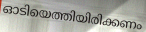
ഓടിയെത്തിയിരിക്കണം